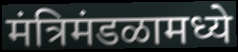
मंत्रिमंडळामध्ये